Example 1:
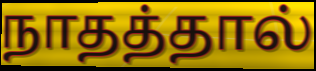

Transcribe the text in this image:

நாதத்தால்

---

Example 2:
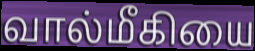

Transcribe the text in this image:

வால்மீகியை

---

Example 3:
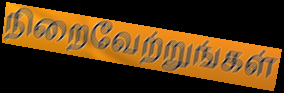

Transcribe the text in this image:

நிறைவேற்றுங்கள்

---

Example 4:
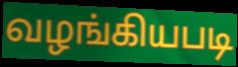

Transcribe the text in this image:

வழங்கியபடி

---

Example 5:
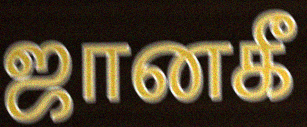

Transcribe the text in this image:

ஜானகீ